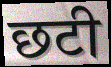
छटी